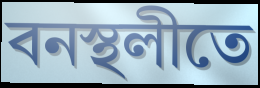
বনস্থলীতে